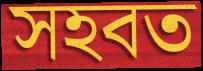
সহবত